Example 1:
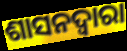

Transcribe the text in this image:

ଶାସନଦ୍ୱାରା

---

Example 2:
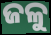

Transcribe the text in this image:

ଜଳୁ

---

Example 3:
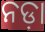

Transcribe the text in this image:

ନଡ଼ା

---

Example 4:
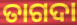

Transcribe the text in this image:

ତାଗଦା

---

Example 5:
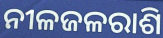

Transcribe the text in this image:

ନୀଳଜଳରାଶି